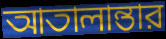
আতালান্তার